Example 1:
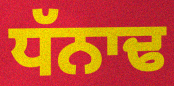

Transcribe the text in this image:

ਧੱਨਾਢ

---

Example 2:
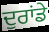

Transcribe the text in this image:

ਦੁਰਾਂਡੇ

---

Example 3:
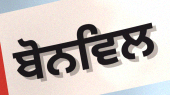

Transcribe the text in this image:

ਬੋਨਵਿਲ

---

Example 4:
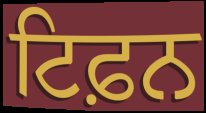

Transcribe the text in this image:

ਟਿਫ਼ਨ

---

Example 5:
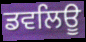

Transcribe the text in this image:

ਡਵਲਿਊ